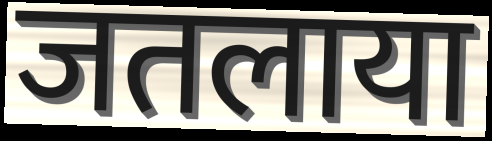
जतलाया